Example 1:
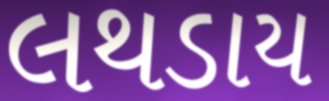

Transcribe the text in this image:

લથડાય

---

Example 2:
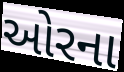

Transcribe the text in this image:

ઓરના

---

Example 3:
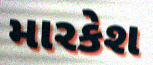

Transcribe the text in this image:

મારકેશ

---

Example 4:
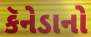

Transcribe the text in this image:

કૅનેડાનો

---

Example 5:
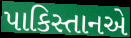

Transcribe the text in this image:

પાકિસ્તાનએ